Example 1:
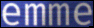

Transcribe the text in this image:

emme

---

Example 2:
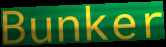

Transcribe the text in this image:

Bunker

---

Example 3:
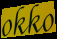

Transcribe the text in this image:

okko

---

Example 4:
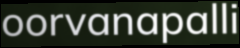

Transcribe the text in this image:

oorvanapalli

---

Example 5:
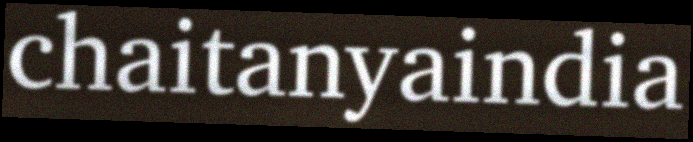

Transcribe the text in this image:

chaitanyaindia